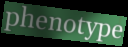
phenotype